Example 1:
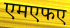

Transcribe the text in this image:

एमएफए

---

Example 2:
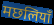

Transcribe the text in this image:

मछलियाँ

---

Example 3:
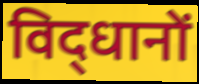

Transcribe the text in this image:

विद्धानों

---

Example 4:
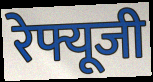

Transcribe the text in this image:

रेफ्यूजी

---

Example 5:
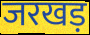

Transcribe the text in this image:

जरखड़